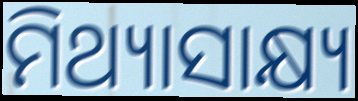
ମିଥ୍ୟାସାକ୍ଷ୍ୟ